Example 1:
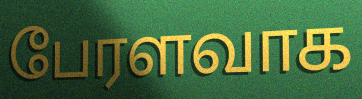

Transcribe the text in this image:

பேரளவாக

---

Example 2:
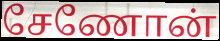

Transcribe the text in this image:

சேணோன்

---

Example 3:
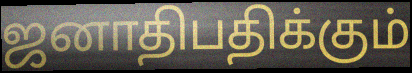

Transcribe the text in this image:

ஜனாதிபதிக்கும்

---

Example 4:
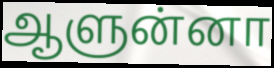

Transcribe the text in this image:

ஆளுன்னா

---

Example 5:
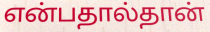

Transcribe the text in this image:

என்பதால்தான்